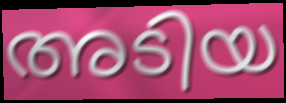
അടിയ